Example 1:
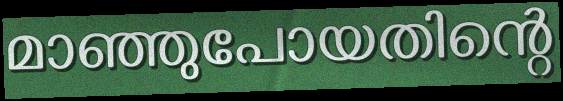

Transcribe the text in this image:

മാഞ്ഞുപോയതിന്റെ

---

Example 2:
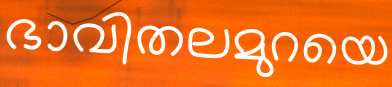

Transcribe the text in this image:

ഭാവിതലമുറയെ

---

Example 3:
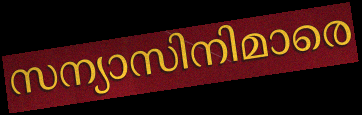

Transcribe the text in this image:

സന്യാസിനിമാരെ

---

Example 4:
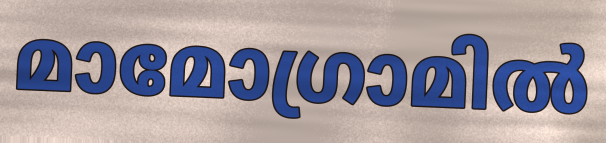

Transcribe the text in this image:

മാമോഗ്രാമിൽ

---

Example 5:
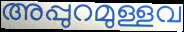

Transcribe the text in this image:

അപ്പുറമുള്ളവ